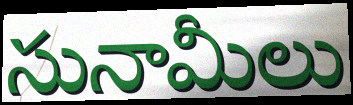
సునామీలు